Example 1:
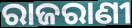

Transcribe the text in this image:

ରାଜରାଣୀ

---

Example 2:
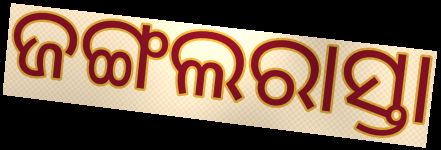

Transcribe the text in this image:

ଜଙ୍ଗଲରାସ୍ତା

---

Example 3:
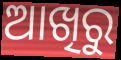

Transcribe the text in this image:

ଆଖିରୁ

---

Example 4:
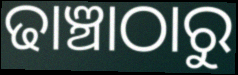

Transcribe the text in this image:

ଢାଞ୍ଚାଠାରୁ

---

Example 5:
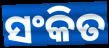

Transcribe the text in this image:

ସଂକିତ